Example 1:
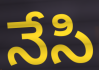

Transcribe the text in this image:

నేసి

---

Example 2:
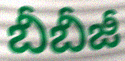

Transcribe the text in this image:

బీబీజీ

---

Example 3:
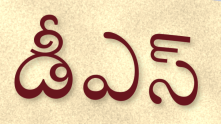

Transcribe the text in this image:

డీఎస్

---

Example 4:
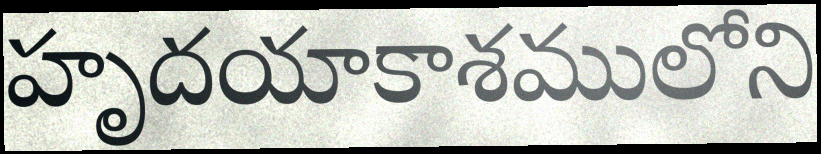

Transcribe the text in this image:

హృదయాకాశములోని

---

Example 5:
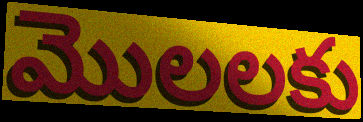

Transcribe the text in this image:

మొలలకు